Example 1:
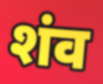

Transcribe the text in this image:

शंव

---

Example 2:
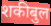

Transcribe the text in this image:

शकीबुल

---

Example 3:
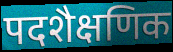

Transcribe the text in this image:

पदशैक्षणिक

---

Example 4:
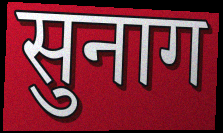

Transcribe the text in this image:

सुनाग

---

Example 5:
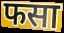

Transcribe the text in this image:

फसा